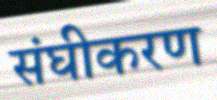
संघीकरण